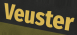
Veuster